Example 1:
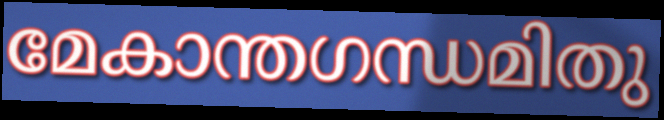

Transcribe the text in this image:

മേകാന്തഗന്ധമിതു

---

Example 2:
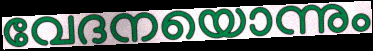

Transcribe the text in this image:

വേദനയൊന്നും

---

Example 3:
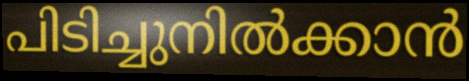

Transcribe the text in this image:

പിടിച്ചുനിൽക്കാൻ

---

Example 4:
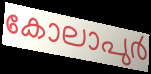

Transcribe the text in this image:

കോലാപുർ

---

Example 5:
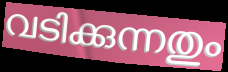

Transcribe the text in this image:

വടിക്കുന്നതും